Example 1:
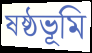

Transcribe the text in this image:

ষষ্ঠভূমি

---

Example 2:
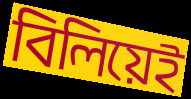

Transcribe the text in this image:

বিলিয়েই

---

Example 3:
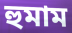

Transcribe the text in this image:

হুমাম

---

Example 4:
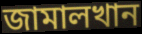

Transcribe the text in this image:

জামালখান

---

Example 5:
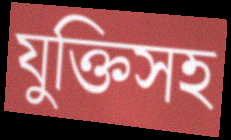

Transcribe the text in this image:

যুক্তিসহ